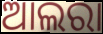
ଆଲରା